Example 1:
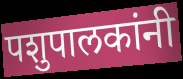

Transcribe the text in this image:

पशुपालकांनी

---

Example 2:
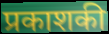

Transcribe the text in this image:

प्रकाशकी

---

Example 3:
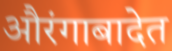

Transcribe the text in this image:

औरंगाबादेत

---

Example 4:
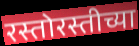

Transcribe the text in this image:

रस्तोरस्तीच्या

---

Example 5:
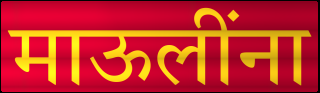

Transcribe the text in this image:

माऊलींना